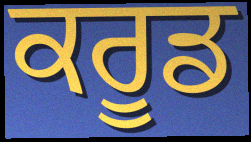
ਕਰੂਡ